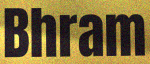
Bhram